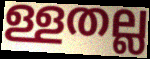
ള്ളതല്ല